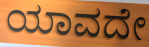
ಯಾವದೇ